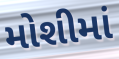
મોશીમાં